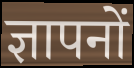
ज्ञापनों